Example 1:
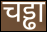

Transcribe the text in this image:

चड्ढा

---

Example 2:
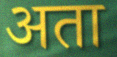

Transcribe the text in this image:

अता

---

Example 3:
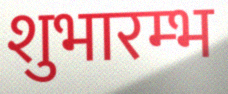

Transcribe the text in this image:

शुभारम्‍भ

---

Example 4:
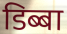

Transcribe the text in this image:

डिब्बा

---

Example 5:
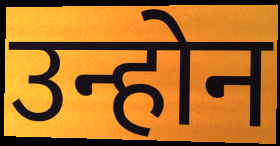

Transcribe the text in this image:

उन्होन